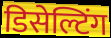
डिसेल्टिंग